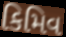
કિમિવ